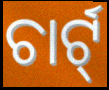
ଚାର୍ଟ୍